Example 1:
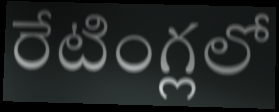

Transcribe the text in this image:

రేటింగ్లలో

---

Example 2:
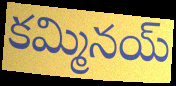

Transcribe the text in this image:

కమ్మినయ్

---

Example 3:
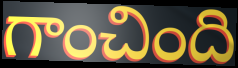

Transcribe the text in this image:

గాంచింది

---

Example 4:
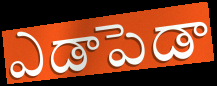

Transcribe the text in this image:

ఎడాపెడా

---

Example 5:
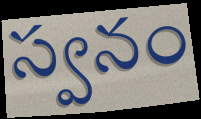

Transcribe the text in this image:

స్వనం